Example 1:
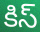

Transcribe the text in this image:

కిస్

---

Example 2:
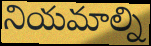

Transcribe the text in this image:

నియమాల్ని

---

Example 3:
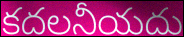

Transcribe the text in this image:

కదలనీయదు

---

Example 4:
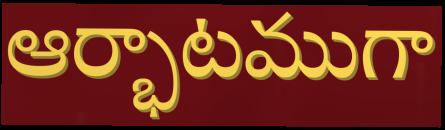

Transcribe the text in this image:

ఆర్భాటముగా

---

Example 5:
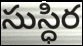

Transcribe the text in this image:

సుస్ధిర